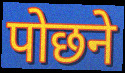
पोछने